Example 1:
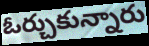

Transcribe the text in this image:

ఓర్చుకున్నారు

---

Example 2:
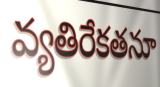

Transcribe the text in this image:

వ్యతిరేకతనూ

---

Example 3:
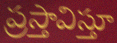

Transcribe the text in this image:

ప్రస్తావిస్తూ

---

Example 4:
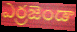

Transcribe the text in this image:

ఎర్రజెండా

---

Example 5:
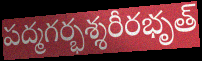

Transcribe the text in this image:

పద్మగర్భశ్శరీరభృత్